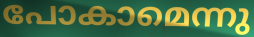
പോകാമെന്നു